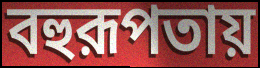
বহুরূপতায়